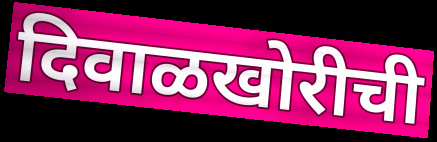
दिवाळखोरीची